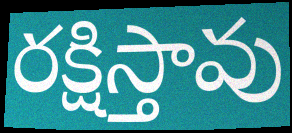
రక్షిస్తావు